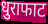
धुराफाट